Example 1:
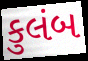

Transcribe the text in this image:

કુલંબ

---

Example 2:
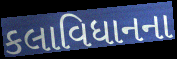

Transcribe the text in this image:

કલાવિધાનના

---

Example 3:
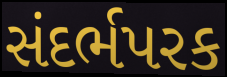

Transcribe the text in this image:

સંદર્ભપરક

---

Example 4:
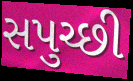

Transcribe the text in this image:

સપુચ્છી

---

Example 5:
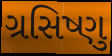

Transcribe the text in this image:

ગ્રસિષ્ણુ